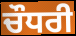
ਚੌਧਰੀ